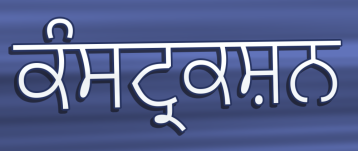
ਕੰਸਟ੍ਰਕਸ਼ਨ